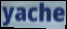
yache